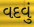
વદવું